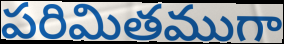
పరిమితముగా